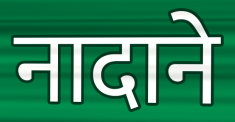
नादाने